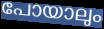
പോയാലും